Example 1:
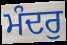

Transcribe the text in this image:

ਮੰਦਰੁ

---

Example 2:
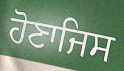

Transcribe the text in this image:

ਹੋਣਾਜਿਸ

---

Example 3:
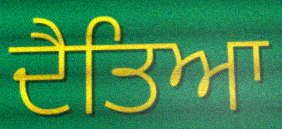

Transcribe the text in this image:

ਦੈਤਿਆ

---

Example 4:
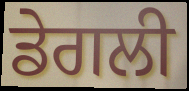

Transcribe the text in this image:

ਡੇਗਲੀ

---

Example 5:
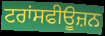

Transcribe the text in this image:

ਟਰਾਂਸਫੀਊਜ਼ਨ